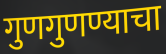
गुणगुणण्याचा